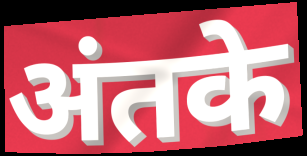
अंतके